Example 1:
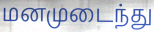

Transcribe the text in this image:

மனமுடைந்து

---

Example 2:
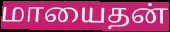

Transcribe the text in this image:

மாயைதன்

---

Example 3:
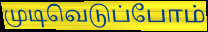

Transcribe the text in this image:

முடிவெடுப்போம்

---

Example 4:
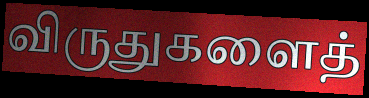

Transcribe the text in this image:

விருதுகளைத்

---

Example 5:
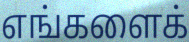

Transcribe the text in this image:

எங்களைக்